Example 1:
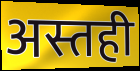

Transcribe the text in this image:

अस्तही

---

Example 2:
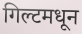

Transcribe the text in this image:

गिल्टमधून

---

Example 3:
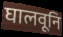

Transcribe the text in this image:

घालवूनि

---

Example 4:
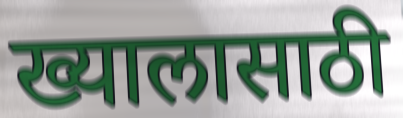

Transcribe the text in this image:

ख्यालासाठी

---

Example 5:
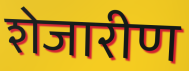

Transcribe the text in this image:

शेजारीण